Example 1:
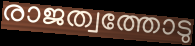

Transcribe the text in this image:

രാജത്വത്തോടു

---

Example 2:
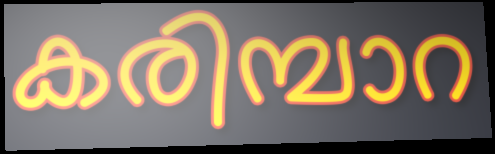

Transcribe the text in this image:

കരിമ്പാറ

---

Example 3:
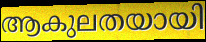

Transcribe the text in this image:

ആകുലതയായി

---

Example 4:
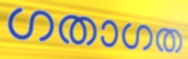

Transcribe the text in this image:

ഗതാഗത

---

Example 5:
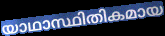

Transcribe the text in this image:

യാഥാസ്ഥിതികമായ